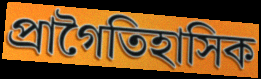
প্রাগৈতিহাসিক